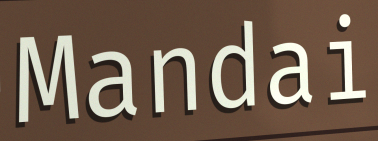
Mandai